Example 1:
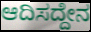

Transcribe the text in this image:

ಆದಿಸದ್ದೇನ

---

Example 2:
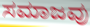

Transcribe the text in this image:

ಸಮಾಜವು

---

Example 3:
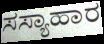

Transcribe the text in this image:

ಸಸ್ಯಾಹಾರ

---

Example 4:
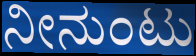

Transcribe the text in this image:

ನೀನುಂಟು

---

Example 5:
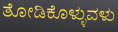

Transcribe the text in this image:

ತೋಡಿಕೊಳ್ಳುವಳು